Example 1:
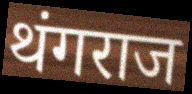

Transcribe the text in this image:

थंगराज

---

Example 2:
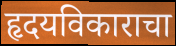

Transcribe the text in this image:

हृदयविकाराचा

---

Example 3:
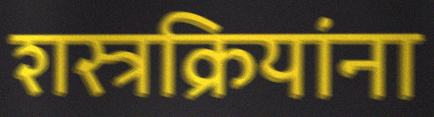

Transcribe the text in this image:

शस्त्रक्रियांना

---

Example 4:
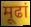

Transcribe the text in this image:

मूढां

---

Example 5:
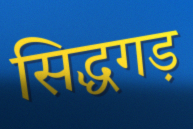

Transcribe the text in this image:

सिद्धगड़